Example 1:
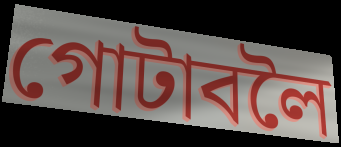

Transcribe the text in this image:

গোটাবলৈ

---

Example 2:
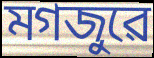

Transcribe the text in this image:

মগজুৱে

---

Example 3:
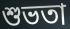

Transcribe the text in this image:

শুভতা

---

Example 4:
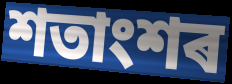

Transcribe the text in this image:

শতাংশৰ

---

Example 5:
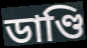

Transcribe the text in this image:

ডাণ্ডি